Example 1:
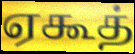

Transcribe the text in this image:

ஏகூத்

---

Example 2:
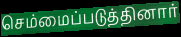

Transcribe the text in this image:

செம்மைப்படுத்தினார்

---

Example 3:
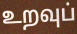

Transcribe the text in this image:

உறவுப்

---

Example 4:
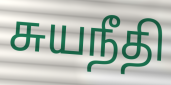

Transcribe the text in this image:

சுயநீதி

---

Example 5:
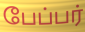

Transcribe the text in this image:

பேப்பர்